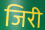
जिरी